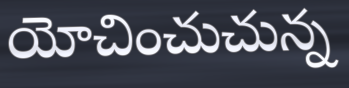
యోచించుచున్న